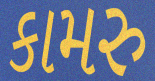
કામરુ